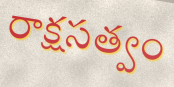
రాక్షసత్వం